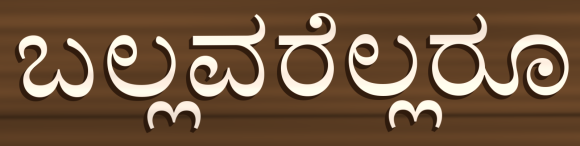
ಬಲ್ಲವರೆಲ್ಲರೂ